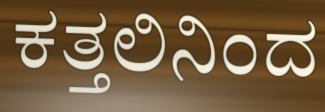
ಕತ್ತಲಿನಿಂದ